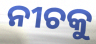
ନୀଚକୁ